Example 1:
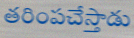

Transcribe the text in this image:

తరింపచేస్తాడు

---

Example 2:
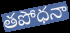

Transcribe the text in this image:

తపోధనా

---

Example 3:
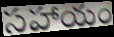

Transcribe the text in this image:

సహాయం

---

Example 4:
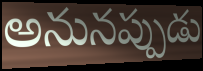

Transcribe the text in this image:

అనునప్పుడు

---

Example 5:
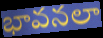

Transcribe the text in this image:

భావనలా